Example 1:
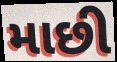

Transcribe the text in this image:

માછી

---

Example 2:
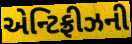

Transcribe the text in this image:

એન્ટિફ્રીઝની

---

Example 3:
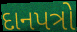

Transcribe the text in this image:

દાનપત્રો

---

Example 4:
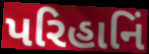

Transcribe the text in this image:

પરિહાનિં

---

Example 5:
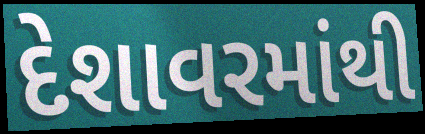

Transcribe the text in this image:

દેશાવરમાંથી